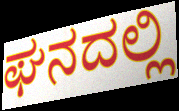
ಘನದಲ್ಲಿ